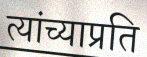
त्यांच्याप्रति